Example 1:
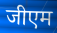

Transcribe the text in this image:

जीएम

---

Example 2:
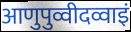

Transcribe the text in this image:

आणुपुव्वीदव्वाइं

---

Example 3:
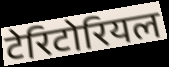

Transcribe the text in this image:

टेरिटोरियल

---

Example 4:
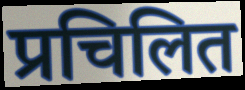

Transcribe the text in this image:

प्रचिलित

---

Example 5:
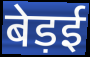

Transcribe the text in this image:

बेड़ई